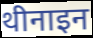
थीनाइन